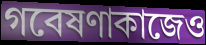
গবেষণাকাজেও